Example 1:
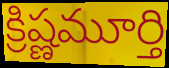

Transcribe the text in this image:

క్రిష్ణమూర్తి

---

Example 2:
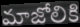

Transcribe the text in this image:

మాజోలికి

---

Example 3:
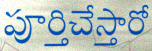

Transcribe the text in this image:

పూర్తిచేస్తారో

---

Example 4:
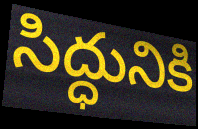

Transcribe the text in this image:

సిద్ధునికి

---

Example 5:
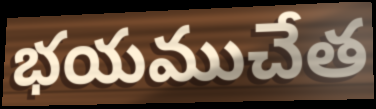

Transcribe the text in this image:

భయముచేత